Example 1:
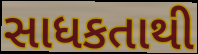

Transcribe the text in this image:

સાધકતાથી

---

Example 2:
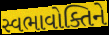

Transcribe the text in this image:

સ્વભાવોક્તિને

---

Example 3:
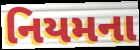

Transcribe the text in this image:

નિયમના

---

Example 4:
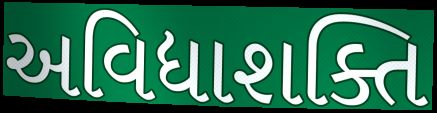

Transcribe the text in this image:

અવિદ્યાશક્તિ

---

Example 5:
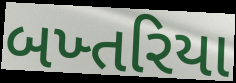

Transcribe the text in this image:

બખ્તરિયા